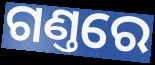
ଗଣ୍ତରେ